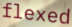
flexed